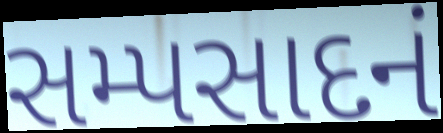
સમ્પસાદનં